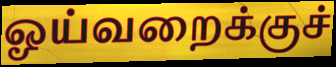
ஓய்வறைக்குச்